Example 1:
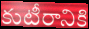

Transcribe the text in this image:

కుటీరానికి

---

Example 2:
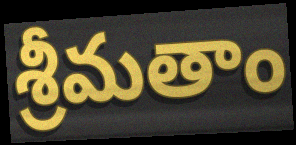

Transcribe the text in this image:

శ్రీమతాం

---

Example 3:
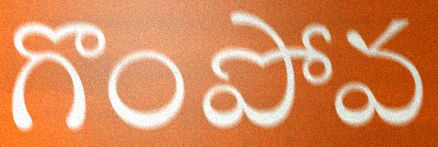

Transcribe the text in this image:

గొంపోవ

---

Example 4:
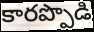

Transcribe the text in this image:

కారప్పొడి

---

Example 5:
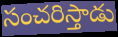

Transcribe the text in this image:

సంచరిస్తాడు